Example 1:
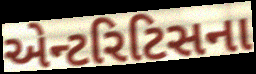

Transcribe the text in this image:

એન્ટરિટિસના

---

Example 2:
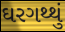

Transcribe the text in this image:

ઘરગથ્થું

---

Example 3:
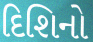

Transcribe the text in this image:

દિશિનો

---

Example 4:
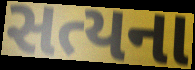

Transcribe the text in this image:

સત્યના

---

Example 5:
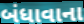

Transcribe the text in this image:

બંધાવાના